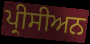
ਪ੍ਰੀਸੀਅਨ